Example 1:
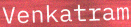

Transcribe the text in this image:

Venkatram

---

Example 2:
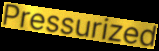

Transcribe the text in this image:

Pressurized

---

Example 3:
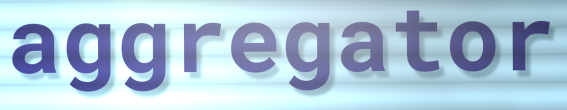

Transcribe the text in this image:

aggregator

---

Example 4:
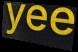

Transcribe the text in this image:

yee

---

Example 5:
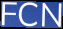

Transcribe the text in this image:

FCN